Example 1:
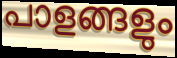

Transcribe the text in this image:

പാളങ്ങളും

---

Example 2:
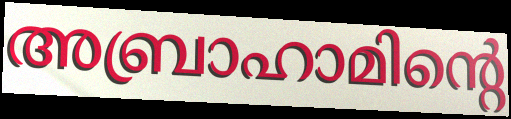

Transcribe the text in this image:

അബ്രാഹാമിന്റെ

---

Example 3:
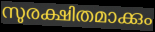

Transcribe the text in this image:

സുരക്ഷിതമാക്കും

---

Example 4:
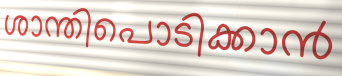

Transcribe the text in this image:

ശാന്തിപൊടിക്കാൻ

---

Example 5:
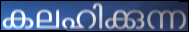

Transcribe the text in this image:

കലഹിക്കുന്ന